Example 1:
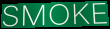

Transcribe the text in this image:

SMOKE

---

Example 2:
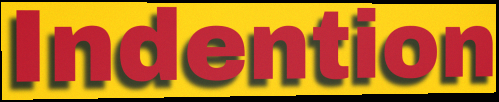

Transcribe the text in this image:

Indention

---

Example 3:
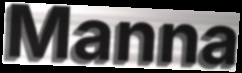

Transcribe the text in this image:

Manna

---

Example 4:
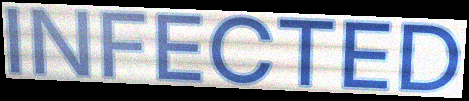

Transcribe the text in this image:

INFECTED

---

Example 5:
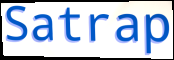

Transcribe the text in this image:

Satrap